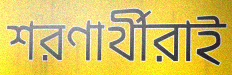
শরণার্থীরাই